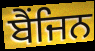
ਬੈਂਜਿਨ